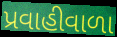
પ્રવાહીવાળા